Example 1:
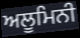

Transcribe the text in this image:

ਅਲੂਮਿਨੀ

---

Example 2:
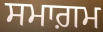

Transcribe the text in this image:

ਸਮਾਗ਼ਮ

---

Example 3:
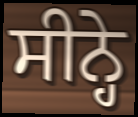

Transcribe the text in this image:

ਸੀਨ੍ਹੇ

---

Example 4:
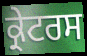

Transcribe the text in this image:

ਕ੍ਰੇਟਰਸ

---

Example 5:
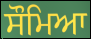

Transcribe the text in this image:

ਸੌਮਿਆ